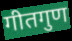
गीतगुण